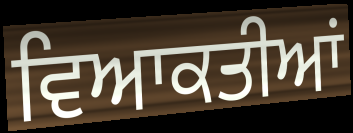
ਵਿਆਕਤੀਆਂ